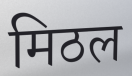
मिठल